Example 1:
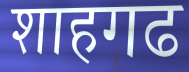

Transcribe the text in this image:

शाहगढ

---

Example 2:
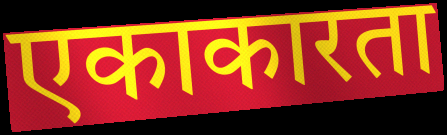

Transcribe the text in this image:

एकाकारता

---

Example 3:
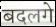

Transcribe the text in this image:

बदलगे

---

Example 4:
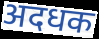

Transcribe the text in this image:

अदधक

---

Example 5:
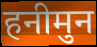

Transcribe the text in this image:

हनीमुन